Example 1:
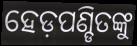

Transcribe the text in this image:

ହେଡ଼ପଣ୍ଡିତଙ୍କୁ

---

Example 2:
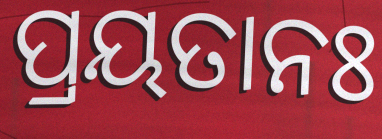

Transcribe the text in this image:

ପ୍ରୟତାନଃ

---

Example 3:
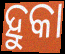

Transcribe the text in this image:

ହୁକା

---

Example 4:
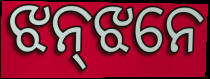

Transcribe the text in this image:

ଝନ୍‌ଝନେ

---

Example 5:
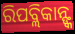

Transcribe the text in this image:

ରିପବ୍ଲିକାନ୍ଙ୍କ